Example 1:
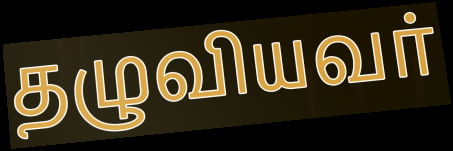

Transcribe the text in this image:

தழுவியவர்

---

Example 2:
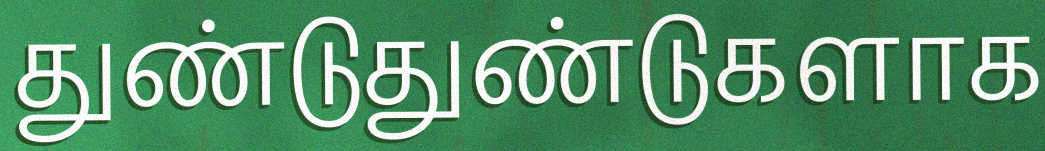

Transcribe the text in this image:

துண்டுதுண்டுகளாக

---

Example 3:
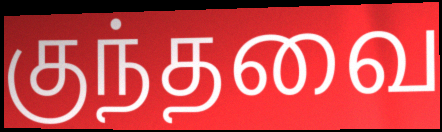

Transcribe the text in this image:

குந்தவை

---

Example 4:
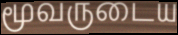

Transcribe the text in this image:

மூவருடைய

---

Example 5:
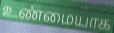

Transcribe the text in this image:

உண்மையாக